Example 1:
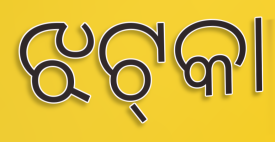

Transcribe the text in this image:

ଝଟ୍‍କା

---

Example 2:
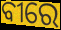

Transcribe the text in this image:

ବୀରେ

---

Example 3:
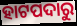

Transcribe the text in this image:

ହାଟପଦାରୁ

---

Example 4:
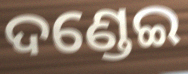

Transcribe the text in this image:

ଦଣ୍ଡେଇ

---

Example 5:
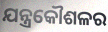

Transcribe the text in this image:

ଯନ୍ତ୍ରକୌଶଳର